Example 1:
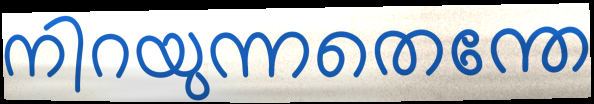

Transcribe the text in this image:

നിറയുന്നതെന്തേ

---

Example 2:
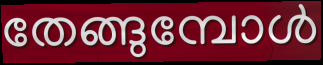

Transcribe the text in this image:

തേങ്ങുമ്പോൾ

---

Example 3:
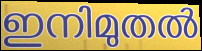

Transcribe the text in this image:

ഇനിമുതൽ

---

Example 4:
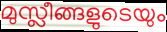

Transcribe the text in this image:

മുസ്ലീങ്ങളുടെയും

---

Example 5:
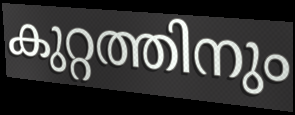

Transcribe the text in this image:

കുറ്റത്തിനും